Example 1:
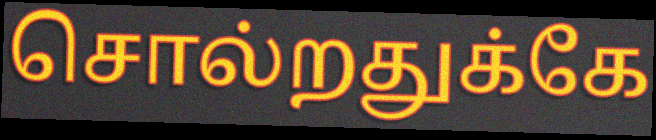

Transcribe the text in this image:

சொல்றதுக்கே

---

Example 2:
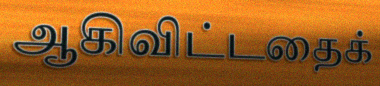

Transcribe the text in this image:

ஆகிவிட்டதைக்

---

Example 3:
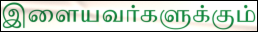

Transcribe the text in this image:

இளையவர்களுக்கும்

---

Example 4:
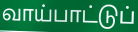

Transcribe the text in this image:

வாய்பாட்டுப்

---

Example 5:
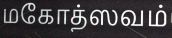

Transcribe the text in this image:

மகோத்ஸவம்